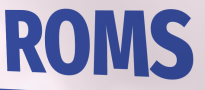
ROMS